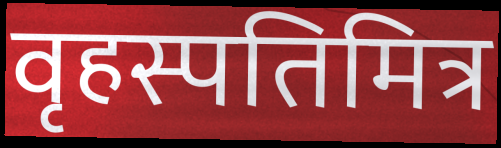
वृहस्पतिमित्र